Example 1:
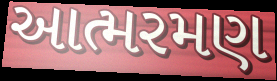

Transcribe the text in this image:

આત્મરમણ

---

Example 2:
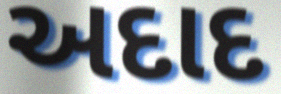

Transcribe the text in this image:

અદાદ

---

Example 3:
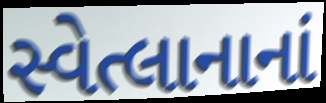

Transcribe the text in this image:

સ્વેત્લાનાનાં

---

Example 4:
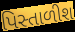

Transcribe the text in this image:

પિસ્તાળીશ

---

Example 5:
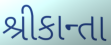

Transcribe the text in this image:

શ્રીકાન્તા